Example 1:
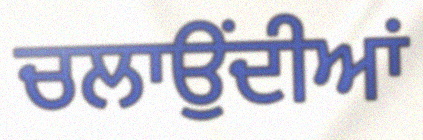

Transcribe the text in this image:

ਚਲਾਉਂਦੀਆਂ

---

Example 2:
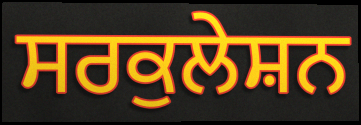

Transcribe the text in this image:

ਸਰਕੁਲੇਸ਼ਨ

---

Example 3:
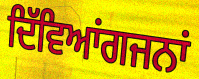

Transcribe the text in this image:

ਦਿੱਵਿਆਂਗਜਨਾਂ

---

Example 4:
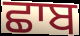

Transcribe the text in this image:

ਛਾਬ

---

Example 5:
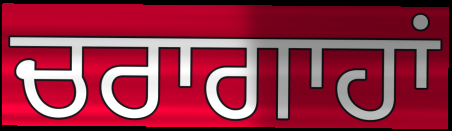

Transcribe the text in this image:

ਚਰਾਗਾਹਾਂ